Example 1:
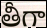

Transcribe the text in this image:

తీగా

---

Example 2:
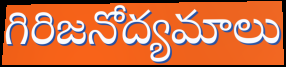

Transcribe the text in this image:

గిరిజనోద్యమాలు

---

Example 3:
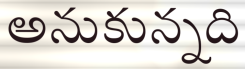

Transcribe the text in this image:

అనుకున్నది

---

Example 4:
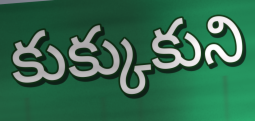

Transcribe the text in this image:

కుక్కుకుని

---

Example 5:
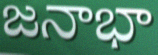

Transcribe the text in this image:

జనాభా